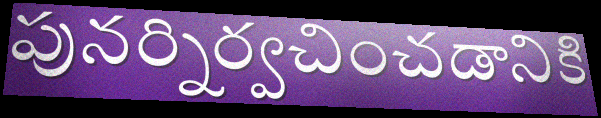
పునర్నిర్వచించడానికి